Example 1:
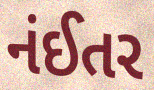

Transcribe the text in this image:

નંઈતર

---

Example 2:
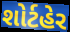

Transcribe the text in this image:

શોર્ટહેર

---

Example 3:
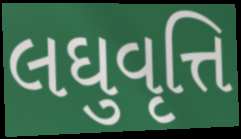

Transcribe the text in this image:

લઘુવૃત્તિ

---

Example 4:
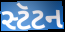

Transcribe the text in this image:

સ્ટૅટન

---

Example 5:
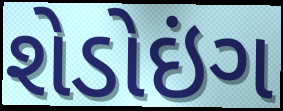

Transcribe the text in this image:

શેડોઇંગ